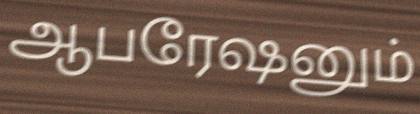
ஆபரேஷனும்